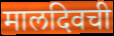
मालदिवची